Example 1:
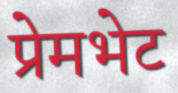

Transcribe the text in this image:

प्रेमभेट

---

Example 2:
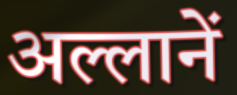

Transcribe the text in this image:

अल्लानें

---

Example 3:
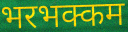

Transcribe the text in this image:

भरभक्कम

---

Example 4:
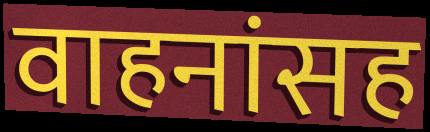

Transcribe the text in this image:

वाहनांसह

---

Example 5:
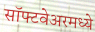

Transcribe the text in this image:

सॉफ्टवेअरमध्ये